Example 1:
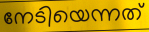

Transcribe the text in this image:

നേടിയെന്നത്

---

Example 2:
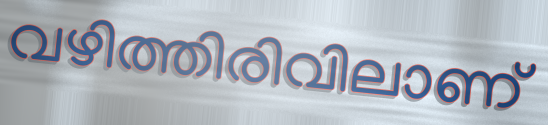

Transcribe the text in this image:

വഴിത്തിരിവിലാണ്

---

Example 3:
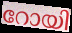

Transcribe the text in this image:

റോയി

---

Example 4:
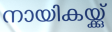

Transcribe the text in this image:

നായികയ്ക്കു്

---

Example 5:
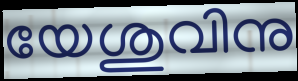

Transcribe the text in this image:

യേശുവിനു